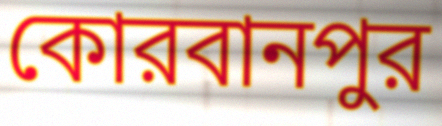
কোরবানপুর